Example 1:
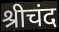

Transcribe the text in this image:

श्रीचंद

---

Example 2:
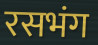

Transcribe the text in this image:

रसभंग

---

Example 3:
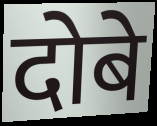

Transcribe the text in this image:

दोबे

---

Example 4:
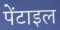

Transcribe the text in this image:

पेंटाइल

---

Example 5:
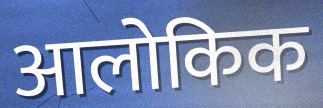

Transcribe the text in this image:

आलोकिक